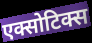
एक्सोटिक्स